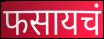
फसायचं